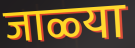
जाळ्या